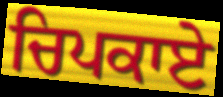
ਚਿਪਕਾਏ